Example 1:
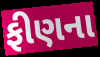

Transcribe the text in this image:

ફીણના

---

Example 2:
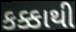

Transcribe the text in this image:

કક્કાથી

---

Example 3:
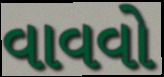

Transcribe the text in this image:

વાવવો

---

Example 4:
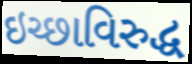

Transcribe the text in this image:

ઇચ્છાવિરુદ્ધ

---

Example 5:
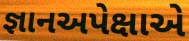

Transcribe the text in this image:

જ્ઞાનઅપેક્ષાએ